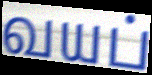
வயப்